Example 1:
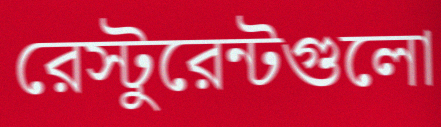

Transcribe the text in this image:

রেস্টুরেন্টগুলো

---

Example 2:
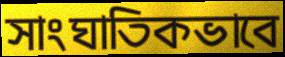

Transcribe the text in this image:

সাংঘাতিকভাবে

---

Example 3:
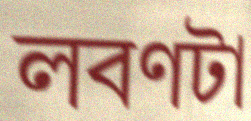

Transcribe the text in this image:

লবণটা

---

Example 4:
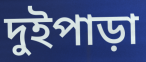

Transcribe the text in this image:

দুইপাড়া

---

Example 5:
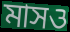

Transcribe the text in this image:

মাসও